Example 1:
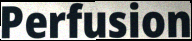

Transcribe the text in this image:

Perfusion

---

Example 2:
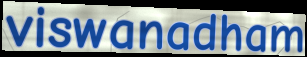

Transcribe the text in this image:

viswanadham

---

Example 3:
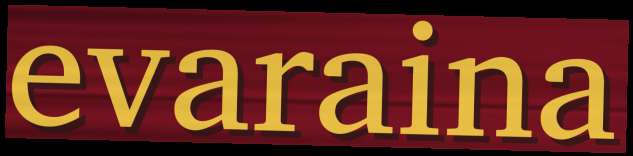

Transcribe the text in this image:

evaraina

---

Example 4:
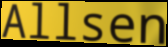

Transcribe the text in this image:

Allsen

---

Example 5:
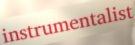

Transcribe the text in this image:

instrumentalist